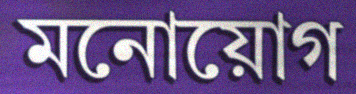
মনোয়োগ